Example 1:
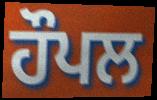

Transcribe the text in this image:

ਹੌਪਲ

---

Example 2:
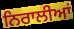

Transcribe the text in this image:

ਨਿਰਾਲੀਆਂ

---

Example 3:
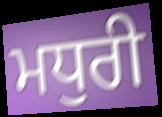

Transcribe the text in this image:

ਮਧੁਰੀ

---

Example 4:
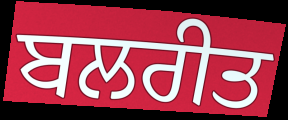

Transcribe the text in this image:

ਬਲਰੀਤ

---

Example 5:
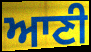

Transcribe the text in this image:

ਆਣੀ